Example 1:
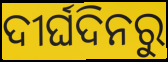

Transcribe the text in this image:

ଦୀର୍ଘଦିନରୁ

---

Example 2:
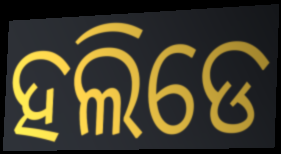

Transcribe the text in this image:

ହଲିଡେ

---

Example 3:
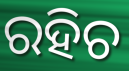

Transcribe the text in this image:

ରହିଚ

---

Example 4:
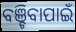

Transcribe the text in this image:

ବଞ୍ଚିବାପାଇଁ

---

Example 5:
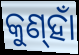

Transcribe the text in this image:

କୁଣ୍‌ହାଁ